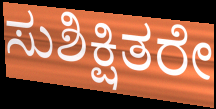
ಸುಶಿಕ್ಷಿತರೇ